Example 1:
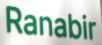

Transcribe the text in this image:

Ranabir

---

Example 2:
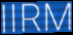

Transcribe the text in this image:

IIRM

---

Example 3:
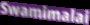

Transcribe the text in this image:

Swamimalai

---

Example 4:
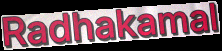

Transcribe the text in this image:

Radhakamal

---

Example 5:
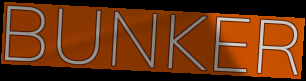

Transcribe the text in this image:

BUNKER